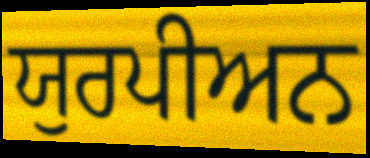
ਯੁਰਪੀਅਨ